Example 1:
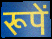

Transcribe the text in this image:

रूपें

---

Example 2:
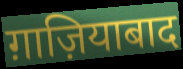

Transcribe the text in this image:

ग़ाज़ियाबाद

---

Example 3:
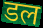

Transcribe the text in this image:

डल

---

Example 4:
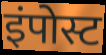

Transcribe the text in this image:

इंपोस्ट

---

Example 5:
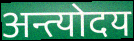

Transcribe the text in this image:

अन्त्योदय